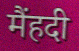
मैंहदी